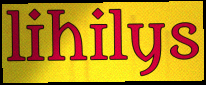
lihilys